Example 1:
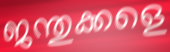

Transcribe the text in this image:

ജന്തുക്കളെ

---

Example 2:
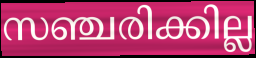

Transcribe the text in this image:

സഞ്ചരിക്കില്ല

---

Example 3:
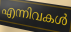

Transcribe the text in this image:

എന്നിവകൾ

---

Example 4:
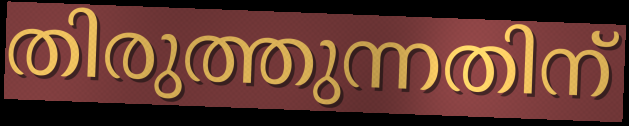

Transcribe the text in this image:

തിരുത്തുന്നതിന്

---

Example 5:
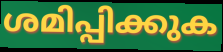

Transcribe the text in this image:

ശമിപ്പിക്കുക